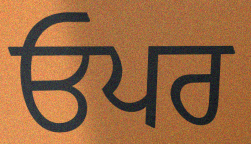
ਓਪਰ